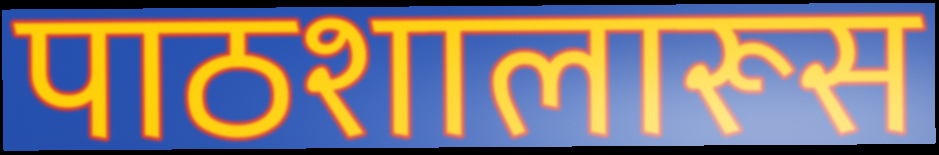
पाठशालारूस